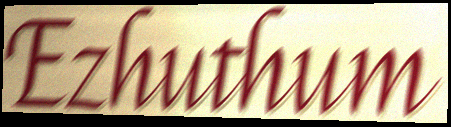
Ezhuthum